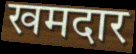
खमदार